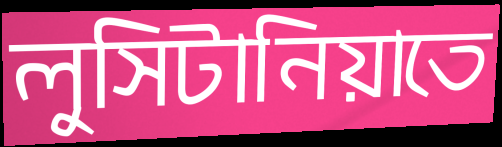
লুসিটানিয়াতে